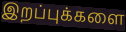
இறப்புக்களை